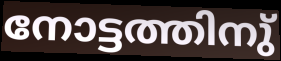
നോട്ടത്തിനു്